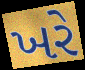
ખરે